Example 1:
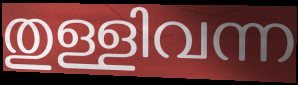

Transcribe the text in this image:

തുള്ളിവന്ന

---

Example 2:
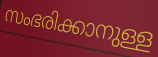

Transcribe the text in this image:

സംഭരിക്കാനുള്ള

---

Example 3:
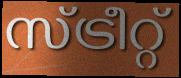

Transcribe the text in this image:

സ്ട്രീറ്റ്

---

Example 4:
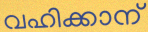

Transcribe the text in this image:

വഹിക്കാന്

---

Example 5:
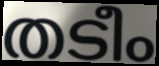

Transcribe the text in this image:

തടീം